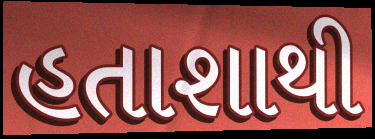
હતાશાથી